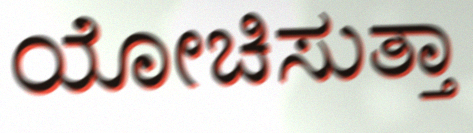
ಯೋಚಿಸುತ್ತಾ